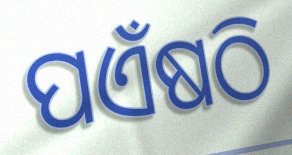
ପଏଁଷଠି